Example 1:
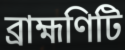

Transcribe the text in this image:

ব্রাহ্মণিটি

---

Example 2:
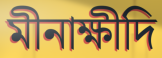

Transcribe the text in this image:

মীনাক্ষীদি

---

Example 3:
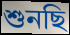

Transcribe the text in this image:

শুনছি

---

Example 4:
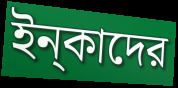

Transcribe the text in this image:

ইন্‌কাদের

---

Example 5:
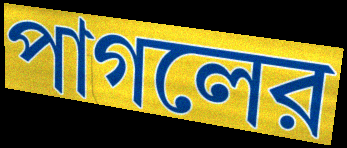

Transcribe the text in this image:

পাগলের